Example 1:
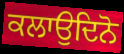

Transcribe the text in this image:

ਕਲਾਉਦਿਨੋ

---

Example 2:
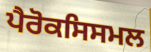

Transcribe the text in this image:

ਪੈਰੋਕਸਿਸਮਲ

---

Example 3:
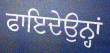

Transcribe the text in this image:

ਫਾਇਦੇਉਨ੍ਹਾਂ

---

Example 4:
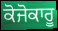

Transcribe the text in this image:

ਕੋਜੋਕਾਰੂ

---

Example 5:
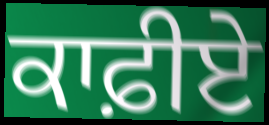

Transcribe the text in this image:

ਕਾਫ਼ੀਏ